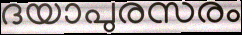
ദയാപുരസരം